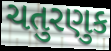
ચતુરણુક